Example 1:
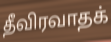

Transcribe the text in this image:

தீவிரவாதக்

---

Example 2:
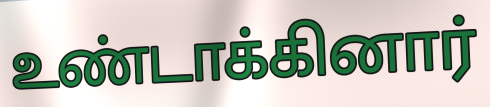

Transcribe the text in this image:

உண்டாக்கினார்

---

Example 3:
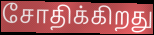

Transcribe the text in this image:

சோதிக்கிறது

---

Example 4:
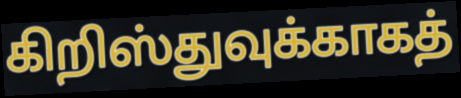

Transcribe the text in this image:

கிறிஸ்துவுக்காகத்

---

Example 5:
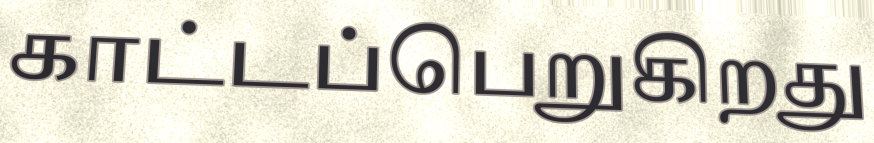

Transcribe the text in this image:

காட்டப்பெறுகிறது